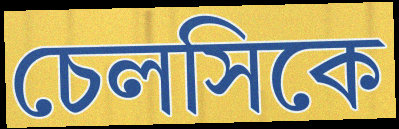
চেলসিকে